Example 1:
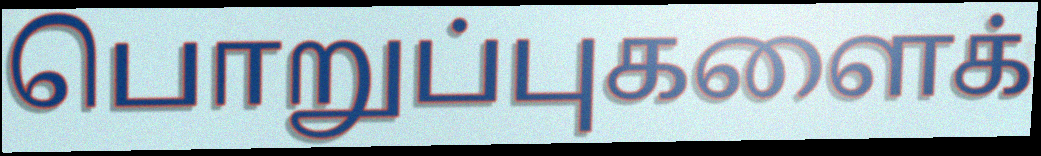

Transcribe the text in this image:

பொறுப்புகளைக்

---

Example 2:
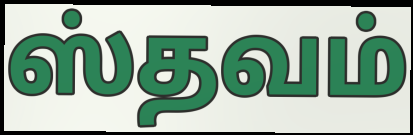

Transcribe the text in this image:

ஸ்தவம்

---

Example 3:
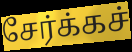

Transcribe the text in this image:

சேர்க்கச்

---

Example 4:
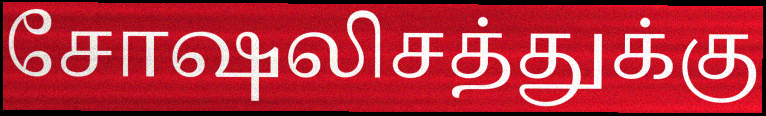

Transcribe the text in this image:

சோஷலிசத்துக்கு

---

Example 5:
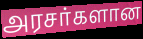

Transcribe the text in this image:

அரசர்களான